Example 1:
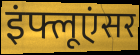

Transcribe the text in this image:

इंफ्लूएंसर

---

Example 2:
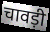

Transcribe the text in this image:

चावड़ी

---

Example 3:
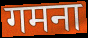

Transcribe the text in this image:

गमना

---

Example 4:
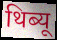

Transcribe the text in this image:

थिब्यू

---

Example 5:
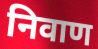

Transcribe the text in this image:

निवाण